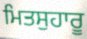
ਮਿਤਸੁਹਾਰੂ